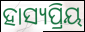
ହାସ୍ୟପ୍ରିୟ